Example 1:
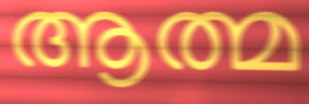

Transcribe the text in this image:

ആത്മ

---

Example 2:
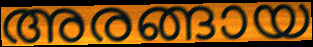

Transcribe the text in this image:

അരങ്ങായ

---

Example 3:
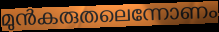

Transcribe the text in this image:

മുൻകരുതലെന്നോണം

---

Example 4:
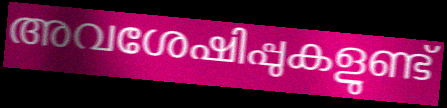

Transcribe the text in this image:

അവശേഷിപ്പുകളുണ്ട്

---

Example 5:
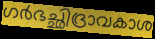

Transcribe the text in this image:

ഗർഭച്ഛിദ്രാവകാശ